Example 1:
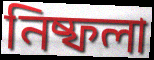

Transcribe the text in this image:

নিষ্ফলা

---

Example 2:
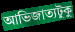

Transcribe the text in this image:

আভিজাত্যটুকু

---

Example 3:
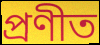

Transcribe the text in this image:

প্রণীত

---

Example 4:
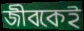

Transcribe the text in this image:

জীবকেই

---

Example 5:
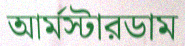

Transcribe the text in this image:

আর্মস্টারডাম